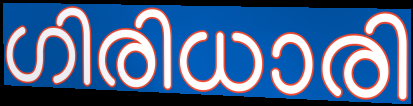
ഗിരിധാരി